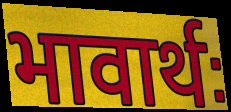
भावार्थः